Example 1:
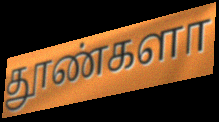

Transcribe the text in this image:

தூண்களா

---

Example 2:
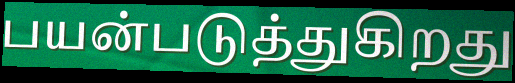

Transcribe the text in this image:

பயன்படுத்துகிறது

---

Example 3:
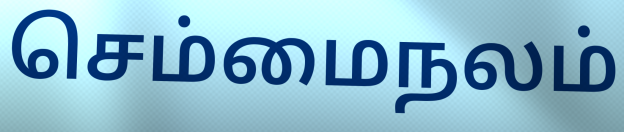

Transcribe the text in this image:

செம்மைநலம்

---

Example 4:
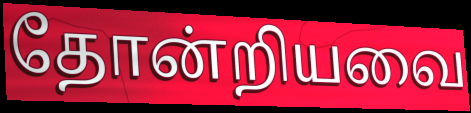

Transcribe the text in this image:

தோன்றியவை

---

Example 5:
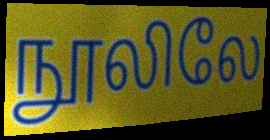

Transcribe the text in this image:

நூலிலே